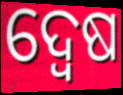
ଦ୍ବେଷ